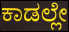
ಕಾಡಲ್ಲೇ